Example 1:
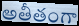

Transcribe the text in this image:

అతీతంగా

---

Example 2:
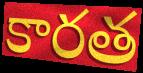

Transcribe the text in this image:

కారత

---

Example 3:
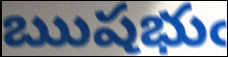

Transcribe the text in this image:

ఋషభుఁ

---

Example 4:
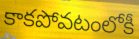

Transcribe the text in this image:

కాకపోవటంలోకీ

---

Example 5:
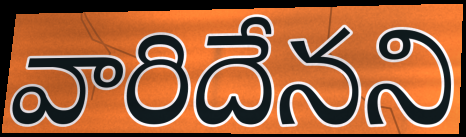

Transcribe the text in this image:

వారిదేనని